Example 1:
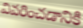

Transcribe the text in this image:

వివరించడానికి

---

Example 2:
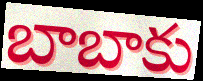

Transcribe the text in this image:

బాబాకు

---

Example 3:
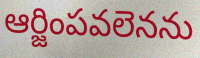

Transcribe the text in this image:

ఆర్జింపవలెనను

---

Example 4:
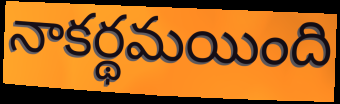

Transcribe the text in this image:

నాకర్థమయింది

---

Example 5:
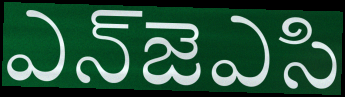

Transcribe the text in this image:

ఎన్‌జెఎసి